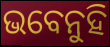
ଭବେନୁହି